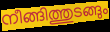
നീങ്ങിത്തുടങ്ങും